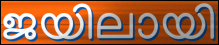
ജയിലായി